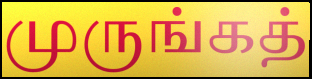
முருங்கத்